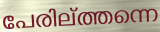
പേരില്ത്തന്നെ